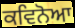
ਕਵਿਨੋਆ